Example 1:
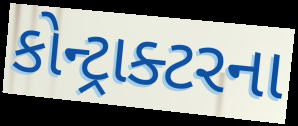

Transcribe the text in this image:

કોન્ટ્રાક્ટરના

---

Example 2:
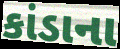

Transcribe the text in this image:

કાંડાના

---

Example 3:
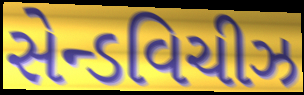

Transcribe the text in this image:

સેન્ડવિચીઝ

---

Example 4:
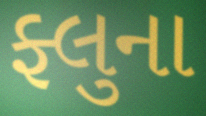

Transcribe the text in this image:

ફ્લુના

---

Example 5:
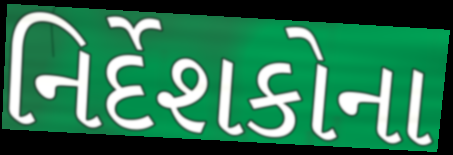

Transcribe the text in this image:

નિર્દેશકોના